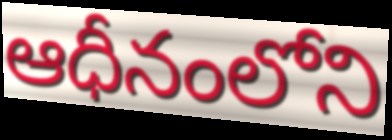
ఆధీనంలోని